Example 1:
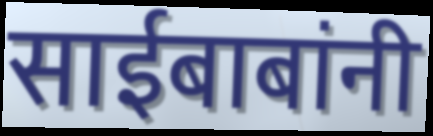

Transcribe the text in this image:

साईबाबांनी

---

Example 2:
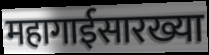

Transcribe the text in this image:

महागाईसारख्या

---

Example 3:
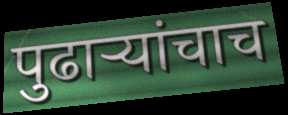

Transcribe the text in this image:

पुढाऱ्यांचाच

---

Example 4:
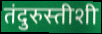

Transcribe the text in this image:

तंदुरुस्तीशी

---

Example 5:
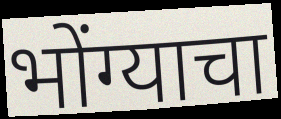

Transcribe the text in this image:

भोंग्याचा